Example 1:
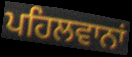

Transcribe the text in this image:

ਪਹਿਲਵਾਨਾਂ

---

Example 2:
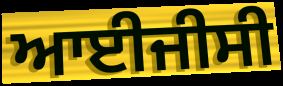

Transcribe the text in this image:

ਆਈਜੀਸੀ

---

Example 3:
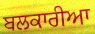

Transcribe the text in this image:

ਬਲਕਾਰੀਆ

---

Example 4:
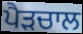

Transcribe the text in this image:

ਪੈੜਚਾਲ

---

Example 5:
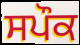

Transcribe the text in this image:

ਸਪੌਕ